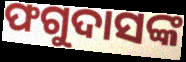
ଫଗୁଦାସଙ୍କ